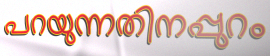
പറയുന്നതിനപ്പുറം